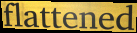
flattened